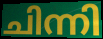
ചിന്നി